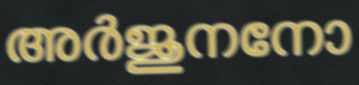
അർജുനനോ